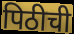
पिठीची